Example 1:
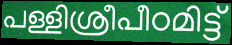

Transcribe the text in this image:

പള്ളിശ്രീപീഠമിട്ട്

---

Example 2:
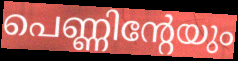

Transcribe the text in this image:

പെണ്ണിന്റേയും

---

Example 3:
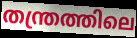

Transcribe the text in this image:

തന്ത്രത്തിലെ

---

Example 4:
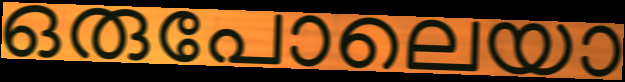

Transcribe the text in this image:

ഒരുപോലെയാ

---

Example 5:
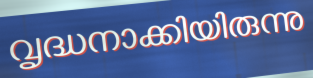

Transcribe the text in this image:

വൃദ്ധനാക്കിയിരുന്നു